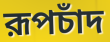
রূপচাঁদ